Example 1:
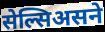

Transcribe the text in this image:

सेल्सिअसने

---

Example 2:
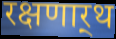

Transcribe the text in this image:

रक्षणार्थ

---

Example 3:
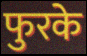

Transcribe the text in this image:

फुरके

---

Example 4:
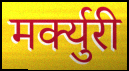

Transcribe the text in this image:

मर्क्युरी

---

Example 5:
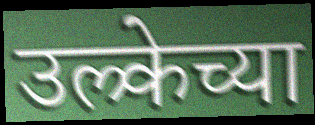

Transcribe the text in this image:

उल्केच्या